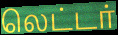
லெட்டர்